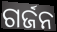
ଗର୍ଜନ